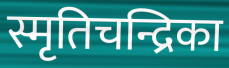
स्मृतिचन्द्रिका